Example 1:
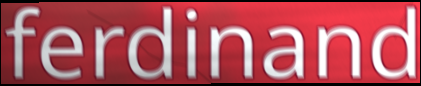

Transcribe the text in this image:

ferdinand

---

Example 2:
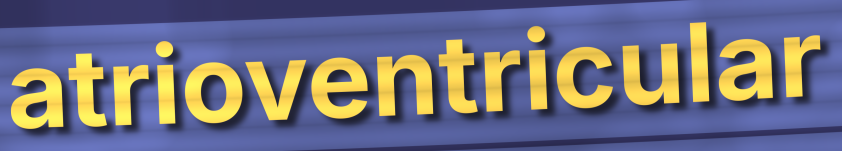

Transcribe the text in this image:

atrioventricular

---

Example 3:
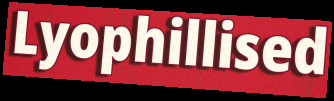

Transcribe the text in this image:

Lyophillised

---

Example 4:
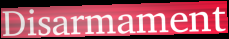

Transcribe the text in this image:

Disarmament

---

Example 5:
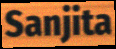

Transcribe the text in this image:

Sanjita